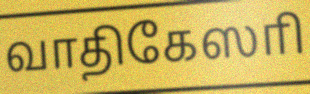
வாதிகேஸரி